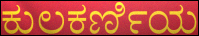
ಕುಲಕರ್ಣಿಯ